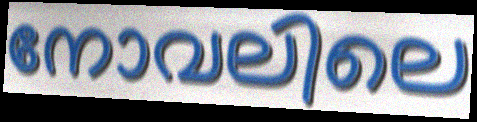
നോവലിലെ